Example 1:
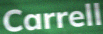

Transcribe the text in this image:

Carrell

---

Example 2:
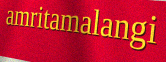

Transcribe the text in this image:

amritamalangi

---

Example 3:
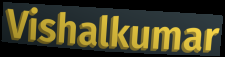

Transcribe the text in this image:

Vishalkumar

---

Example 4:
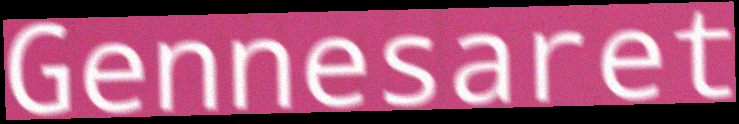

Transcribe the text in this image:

Gennesaret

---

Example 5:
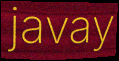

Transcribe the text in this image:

javay